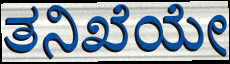
ತನಿಖೆಯೇ